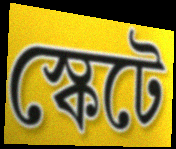
স্কেটে